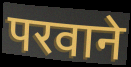
परवाने